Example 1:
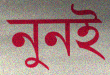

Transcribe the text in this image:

নুনই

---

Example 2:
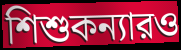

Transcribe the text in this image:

শিশুকন্যারও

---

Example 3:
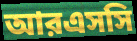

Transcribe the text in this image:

আরএসসি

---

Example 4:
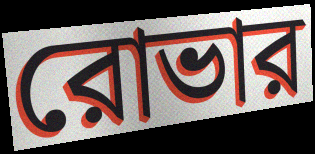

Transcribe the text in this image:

রোভার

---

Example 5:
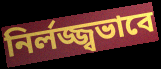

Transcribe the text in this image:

নির্লজ্জ্বভাবে